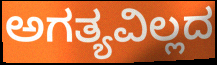
ಅಗತ್ಯವಿಲ್ಲದ